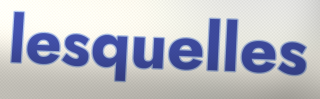
lesquelles